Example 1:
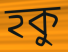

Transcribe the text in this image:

হকু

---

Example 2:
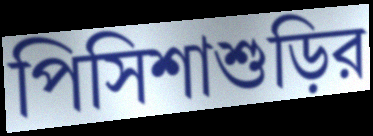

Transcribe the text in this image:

পিসিশাশুড়ির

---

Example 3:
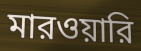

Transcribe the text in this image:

মারওয়ারি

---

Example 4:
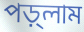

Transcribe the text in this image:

পড়্‌লাম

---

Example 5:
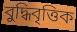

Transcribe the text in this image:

বুদ্ধিবৃত্তিক